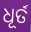
ଧୂର୍ତ